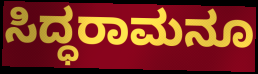
ಸಿದ್ಧರಾಮನೂ